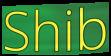
Shib